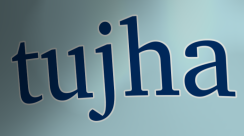
tujha